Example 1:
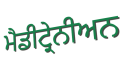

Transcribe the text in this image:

ਮੈਡੀਟ੍ਰੇਨੀਅਨ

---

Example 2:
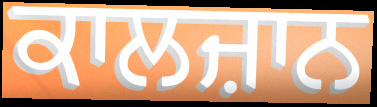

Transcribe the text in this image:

ਕਾਲਜ਼ਾਨ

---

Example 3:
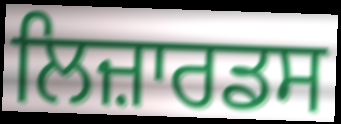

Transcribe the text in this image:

ਲਿਜ਼ਾਰਡਸ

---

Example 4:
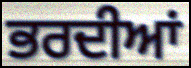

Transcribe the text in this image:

ਭਰਦੀਆਂ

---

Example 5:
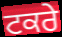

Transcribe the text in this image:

ਟਕਰੇ